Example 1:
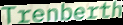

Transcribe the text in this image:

Trenberth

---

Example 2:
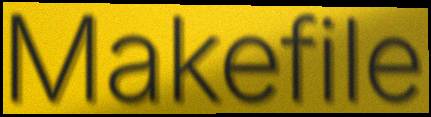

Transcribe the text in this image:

Makefile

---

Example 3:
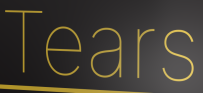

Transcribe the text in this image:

Tears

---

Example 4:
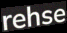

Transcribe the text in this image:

rehse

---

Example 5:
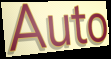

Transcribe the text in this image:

Auto